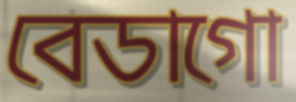
বেডাগো